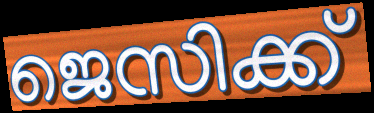
ജെസിക്ക്